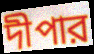
দীপার